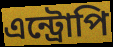
এন্ট্রোপি